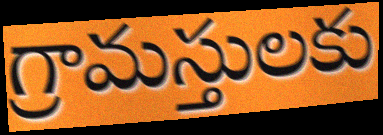
గ్రామస్తులకు